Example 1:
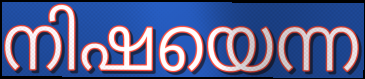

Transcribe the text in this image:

നിഷയെന്ന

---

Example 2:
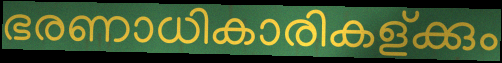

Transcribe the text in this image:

ഭരണാധികാരികള്ക്കും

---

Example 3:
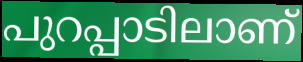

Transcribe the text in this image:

പുറപ്പാടിലാണ്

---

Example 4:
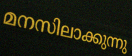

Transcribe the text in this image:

മനസിലാക്കുന്നു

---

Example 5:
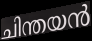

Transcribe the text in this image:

ചിന്തയൻ